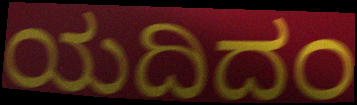
ಯದಿದಂ